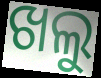
ଖଲୁ